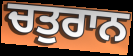
ਚਤੁਰਾਨ